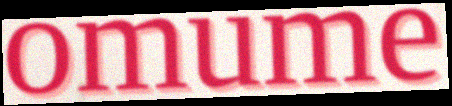
omume